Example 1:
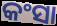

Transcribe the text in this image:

କଂସା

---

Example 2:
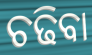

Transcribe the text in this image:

ଚଢିବା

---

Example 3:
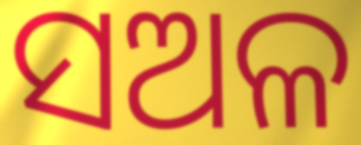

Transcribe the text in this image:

ସଅଳ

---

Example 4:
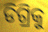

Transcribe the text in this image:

ଡିଗ୍ରିକୁ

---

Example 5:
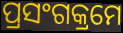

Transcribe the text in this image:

ପ୍ରସଂଗକ୍ରମେ